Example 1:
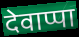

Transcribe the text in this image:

देवाप्पा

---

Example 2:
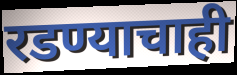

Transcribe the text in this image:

रडण्याचाही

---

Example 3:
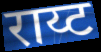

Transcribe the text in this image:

राय्ट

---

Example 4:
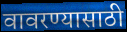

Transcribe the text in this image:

वावरण्यासाठी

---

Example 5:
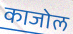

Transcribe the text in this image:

काजोल